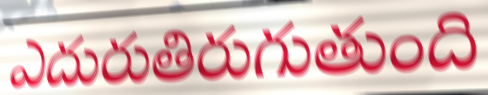
ఎదురుతిరుగుతుంది